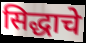
सिद्धाचे